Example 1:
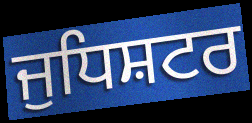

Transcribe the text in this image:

ਜੁਧਿਸ਼ਟਰ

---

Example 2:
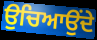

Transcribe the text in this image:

ਉਚਿਆਉਂਦੇ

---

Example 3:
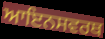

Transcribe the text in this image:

ਆਇਨਸਵਰਥ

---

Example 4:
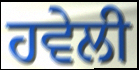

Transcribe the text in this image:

ਹਵੇਲੀ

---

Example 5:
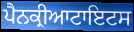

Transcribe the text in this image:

ਪੈਨਕ੍ਰੀਆਟਾਇਟਸ